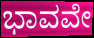
ಭಾವವೇ